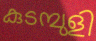
കുടമ്പുളി